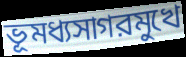
ভূমধ্যসাগরমুখে